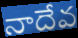
నాదేవ